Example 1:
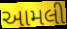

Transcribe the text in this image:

આમલી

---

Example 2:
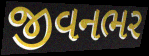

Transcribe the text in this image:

જીવનભર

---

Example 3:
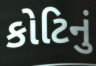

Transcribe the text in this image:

કોટિનું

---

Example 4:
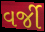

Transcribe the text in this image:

વર્જી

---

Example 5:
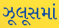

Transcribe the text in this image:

ઝૂલૂસમાં